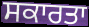
ਸਕਾਰਤਾ